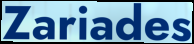
Zariades